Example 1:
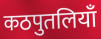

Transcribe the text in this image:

कठपुतलियाँ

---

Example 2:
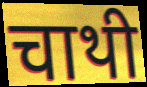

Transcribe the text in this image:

चाथी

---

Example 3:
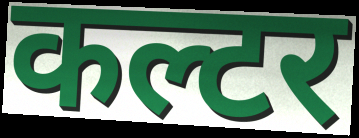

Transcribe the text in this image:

कल्टर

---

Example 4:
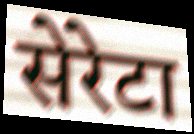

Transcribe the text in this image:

सेरेटा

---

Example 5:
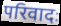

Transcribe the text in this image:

परिवादः